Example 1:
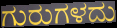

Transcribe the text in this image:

ಗುರುಗಳದು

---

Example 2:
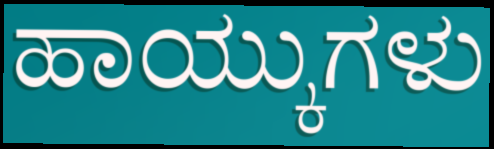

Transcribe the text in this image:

ಹಾಯ್ಕುಗಳು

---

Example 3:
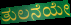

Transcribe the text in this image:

ತುಲನೆಯೇ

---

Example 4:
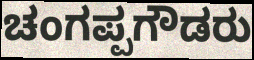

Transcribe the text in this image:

ಚಂಗಪ್ಪಗೌಡರು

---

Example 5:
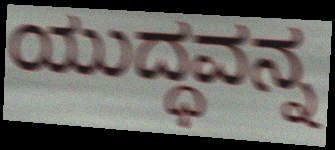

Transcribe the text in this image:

ಯುದ್ಧವನ್ನ